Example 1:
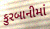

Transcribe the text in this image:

કુરબાનીમાં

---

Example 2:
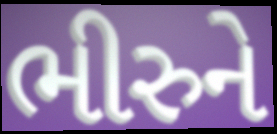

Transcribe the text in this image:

ભીરુને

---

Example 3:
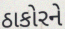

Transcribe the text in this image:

ઠાકોરને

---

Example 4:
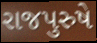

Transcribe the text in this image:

રાજપુરુષે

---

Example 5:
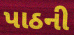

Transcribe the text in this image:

પાઠની